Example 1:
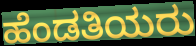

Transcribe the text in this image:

ಹೆಂಡತಿಯರು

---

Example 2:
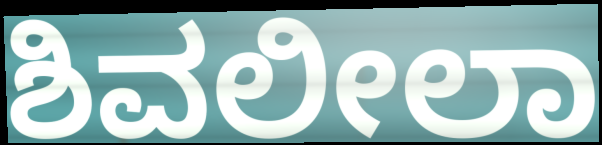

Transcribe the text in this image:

ಶಿವಲೀಲಾ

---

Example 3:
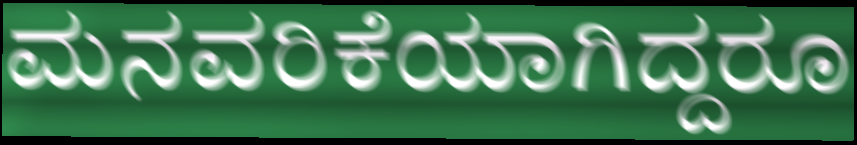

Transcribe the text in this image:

ಮನವರಿಕೆಯಾಗಿದ್ದರೂ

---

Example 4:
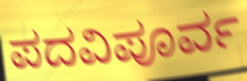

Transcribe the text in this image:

ಪದವಿಪೂರ್ವ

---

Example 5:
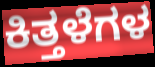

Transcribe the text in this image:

ಕಿತ್ತಳೆಗಳ